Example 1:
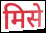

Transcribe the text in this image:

मिसे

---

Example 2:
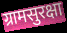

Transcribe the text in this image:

ग्रामसुरक्षा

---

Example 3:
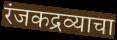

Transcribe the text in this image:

रंजकद्रव्याचा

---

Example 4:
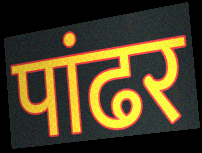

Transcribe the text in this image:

पांढर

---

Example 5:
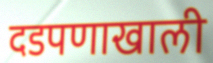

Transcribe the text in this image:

दडपणाखाली